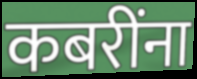
कबरींना